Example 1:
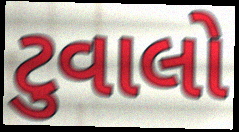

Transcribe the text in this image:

ટુવાલો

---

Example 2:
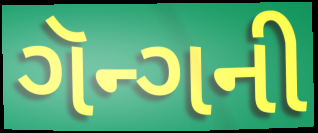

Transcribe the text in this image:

ગૅન્ગની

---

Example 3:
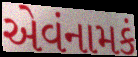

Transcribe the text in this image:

એવંનામકં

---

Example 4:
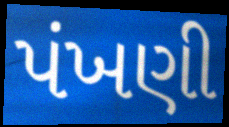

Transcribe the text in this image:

પંખણી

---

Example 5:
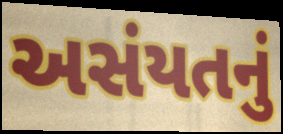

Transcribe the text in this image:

અસંયતનું